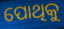
ପୋଥିକୁ